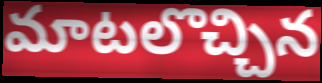
మాటలొచ్చిన